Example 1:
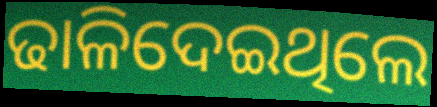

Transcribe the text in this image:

ଢାଳିଦେଇଥିଲେ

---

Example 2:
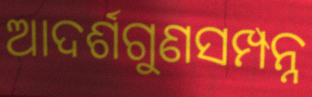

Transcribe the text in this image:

ଆଦର୍ଶଗୁଣସମ୍ପନ୍ନ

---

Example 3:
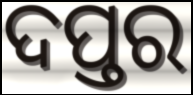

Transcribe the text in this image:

ଦପ୍ତର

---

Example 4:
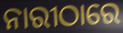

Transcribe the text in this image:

ନାରୀଠାରେ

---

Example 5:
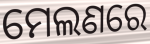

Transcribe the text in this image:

ମେଲଣରେ